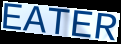
EATER